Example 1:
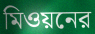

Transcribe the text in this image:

মিওয়নের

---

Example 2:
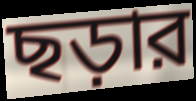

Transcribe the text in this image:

ছড়ার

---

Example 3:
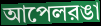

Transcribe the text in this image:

আপেলরঙা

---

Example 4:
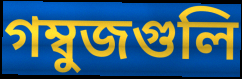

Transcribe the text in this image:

গম্বুজগুলি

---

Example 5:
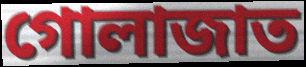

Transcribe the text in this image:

গোলাজাত